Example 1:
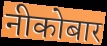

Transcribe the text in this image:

नीकोबार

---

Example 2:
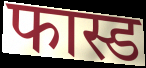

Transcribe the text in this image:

फास्ड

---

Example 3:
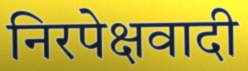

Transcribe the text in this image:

निरपेक्षवादी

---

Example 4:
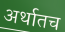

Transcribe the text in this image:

अर्थातच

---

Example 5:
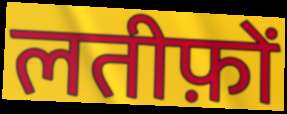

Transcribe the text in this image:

लतीफ़ों